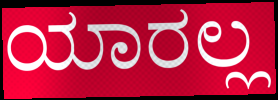
ಯಾರಲ್ಲ